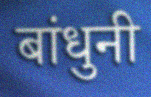
बांधुनी